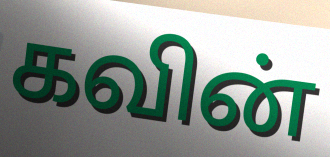
கவின்